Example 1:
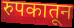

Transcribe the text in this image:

रुपकातून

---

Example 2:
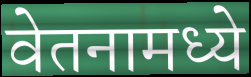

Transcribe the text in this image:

वेतनामध्ये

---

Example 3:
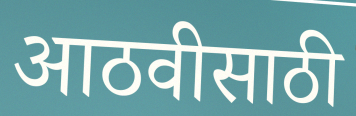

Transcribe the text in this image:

आठवीसाठी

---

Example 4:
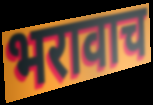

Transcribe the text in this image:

भरावाच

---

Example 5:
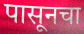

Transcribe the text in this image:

पासूनचा